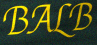
BALB